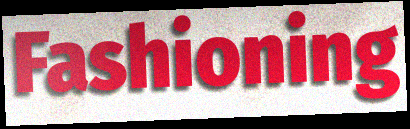
Fashioning